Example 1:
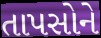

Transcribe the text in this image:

તાપસોને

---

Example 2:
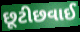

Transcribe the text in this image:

છૂટીછવાઈ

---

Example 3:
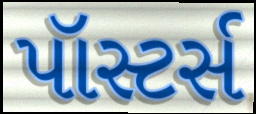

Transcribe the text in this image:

પૉસ્ટર્સ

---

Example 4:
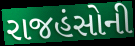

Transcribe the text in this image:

રાજહંસોની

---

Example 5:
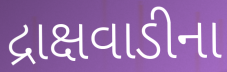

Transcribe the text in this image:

દ્રાક્ષવાડીના